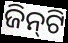
ଜିନ୍‌ଟି